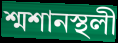
শ্মশানস্থলী